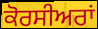
ਕੋਰਸੀਅਰਾਂ